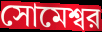
সোমেশ্বর